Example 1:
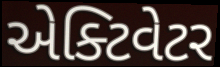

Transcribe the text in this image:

એક્ટિવેટર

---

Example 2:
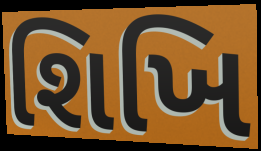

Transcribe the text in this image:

શિખિ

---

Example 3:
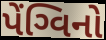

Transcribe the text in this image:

પેંગ્વિનો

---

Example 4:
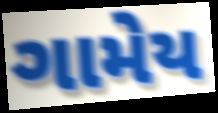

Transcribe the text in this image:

ગામેય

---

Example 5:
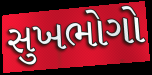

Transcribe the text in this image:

સુખભોગો